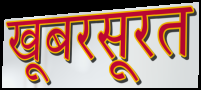
खूबरसूरत